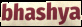
bhashya